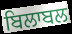
ਬਿਲਾਬਲ